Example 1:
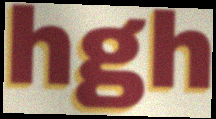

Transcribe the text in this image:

hgh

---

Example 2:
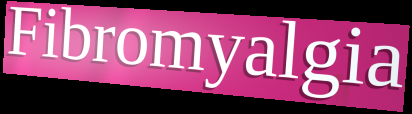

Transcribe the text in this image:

Fibromyalgia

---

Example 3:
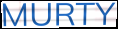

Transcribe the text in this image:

MURTY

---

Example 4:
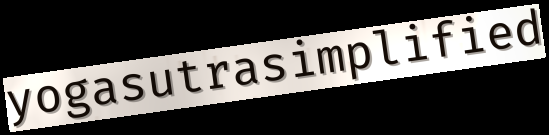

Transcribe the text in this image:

yogasutrasimplified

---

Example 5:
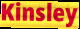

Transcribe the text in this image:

Kinsley